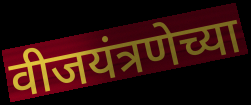
वीजयंत्रणेच्या